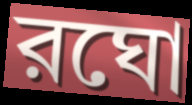
রঘো